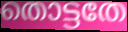
തൊട്ടതേ